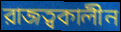
রাজত্বকালীন